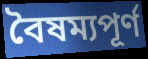
বৈষম্যপূর্ণ